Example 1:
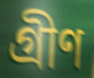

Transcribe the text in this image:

গ্ৰীণ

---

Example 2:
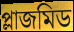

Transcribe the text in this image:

প্লাজমিড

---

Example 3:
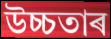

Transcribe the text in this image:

উচ্চতাৰ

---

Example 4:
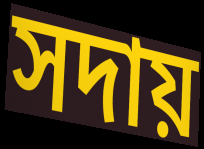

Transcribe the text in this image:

সদায়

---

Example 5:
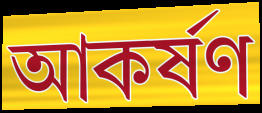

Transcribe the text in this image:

আকৰ্ষণ